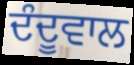
ਦੰਦੂਵਾਲ